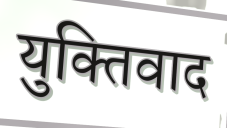
युक्‍तिवाद